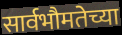
सार्वभौमतेच्या